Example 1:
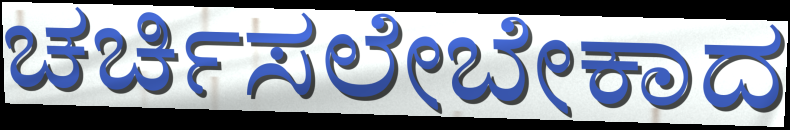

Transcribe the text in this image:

ಚರ್ಚಿಸಲೇಬೇಕಾದ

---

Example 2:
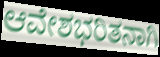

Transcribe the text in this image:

ಆವೇಶಭರಿತನಾಗಿ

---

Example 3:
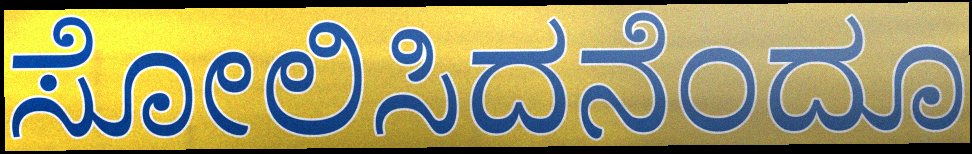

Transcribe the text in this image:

ಸೋಲಿಸಿದನೆಂದೂ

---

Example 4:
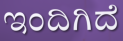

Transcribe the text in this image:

ಇಂದಿಗಿದೆ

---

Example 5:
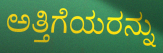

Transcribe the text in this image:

ಅತ್ತಿಗೆಯರನ್ನು